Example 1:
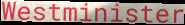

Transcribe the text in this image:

Westminister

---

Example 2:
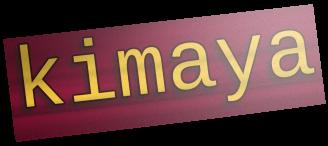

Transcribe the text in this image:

kimaya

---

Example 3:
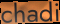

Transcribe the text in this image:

chadi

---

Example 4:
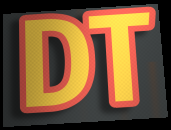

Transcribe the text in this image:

DT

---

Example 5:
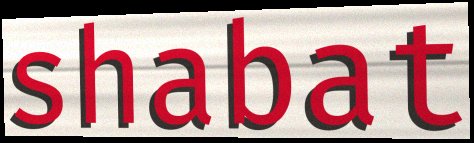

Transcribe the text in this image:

shabat